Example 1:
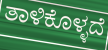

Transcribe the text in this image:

ತಾಳಿಕೊಳ್ಳದೆ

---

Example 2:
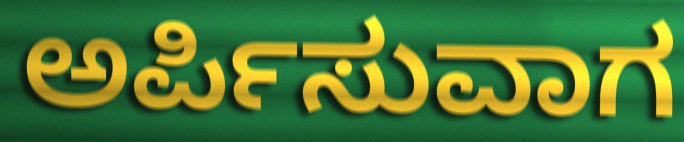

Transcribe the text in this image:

ಅರ್ಪಿಸುವಾಗ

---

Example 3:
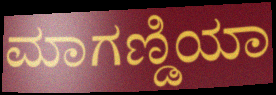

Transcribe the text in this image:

ಮಾಗಣ್ಡಿಯಾ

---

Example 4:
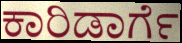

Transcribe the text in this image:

ಕಾರಿಡಾರ್ಗೆ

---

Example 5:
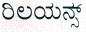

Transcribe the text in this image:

ರಿಲಯನ್ಸ್